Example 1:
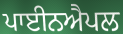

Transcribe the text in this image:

ਪਾਈਨਐਪਲ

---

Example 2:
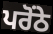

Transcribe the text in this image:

ਪਰੋਂਠੇ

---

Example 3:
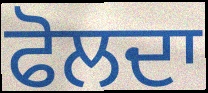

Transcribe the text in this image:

ਫੋਲਦਾ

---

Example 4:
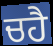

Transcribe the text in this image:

ਚਹੈ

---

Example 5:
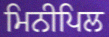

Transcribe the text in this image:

ਮਿਨੀਪਿਲ